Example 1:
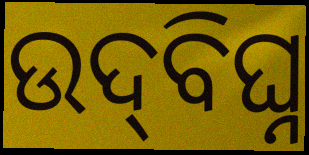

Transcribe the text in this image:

ଉଦ୍‌ବିଘ୍ନ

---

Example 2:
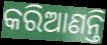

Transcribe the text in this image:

କରିଆଣନ୍ତି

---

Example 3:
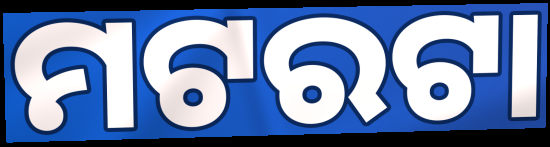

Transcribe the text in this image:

ମଟରଟା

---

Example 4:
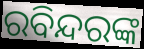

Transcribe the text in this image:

ରବିନ୍ଦରଙ୍କ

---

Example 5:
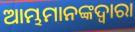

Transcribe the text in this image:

ଆମ୍ଭମାନଙ୍କଦ୍ୱାରା